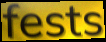
fests